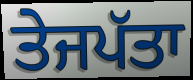
ਤੇਜਪੱਤਾ